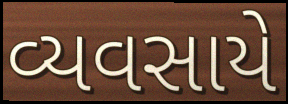
વ્યવસાયે